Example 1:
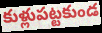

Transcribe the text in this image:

కుళ్లుపట్టకుండ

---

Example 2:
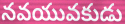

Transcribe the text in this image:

నవయువకుడు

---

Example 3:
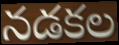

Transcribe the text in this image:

నడకల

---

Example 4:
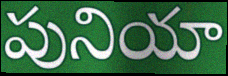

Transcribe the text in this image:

పునియా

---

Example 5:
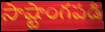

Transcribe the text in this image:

సాష్టాంగపడి